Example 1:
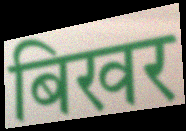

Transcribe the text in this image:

बिखर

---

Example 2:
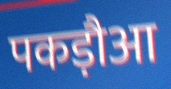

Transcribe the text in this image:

पकड़ौआ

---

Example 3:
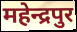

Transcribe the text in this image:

महेन्द्रपुर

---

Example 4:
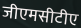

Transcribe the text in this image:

जीएमसीटीए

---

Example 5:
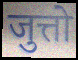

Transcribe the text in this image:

जुत्तो